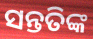
ସନ୍ତତିଙ୍କ